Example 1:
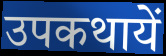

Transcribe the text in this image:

उपकथायें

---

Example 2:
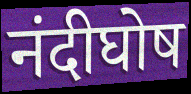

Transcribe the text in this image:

नंदीघोष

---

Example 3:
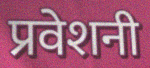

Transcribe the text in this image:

प्रवेशनी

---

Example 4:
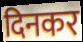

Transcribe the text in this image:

दिनकर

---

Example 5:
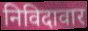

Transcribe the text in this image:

निविदावार